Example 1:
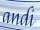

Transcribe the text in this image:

andi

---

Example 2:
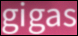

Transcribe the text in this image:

gigas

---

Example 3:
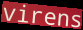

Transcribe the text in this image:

virens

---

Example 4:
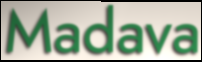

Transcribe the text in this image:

Madava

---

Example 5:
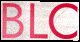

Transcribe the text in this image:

BLC